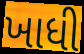
ખાધી